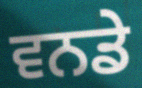
ਵਨਡੇ